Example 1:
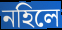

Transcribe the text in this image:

নহিলে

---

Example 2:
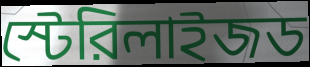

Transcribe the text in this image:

স্টেরিলাইজড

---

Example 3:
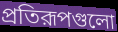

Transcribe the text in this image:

প্রতিরূপগুলো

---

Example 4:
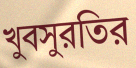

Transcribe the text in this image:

খুবসুরতির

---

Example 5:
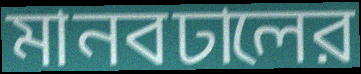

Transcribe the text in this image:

মানবঢালের